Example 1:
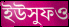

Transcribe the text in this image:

ইউসুফও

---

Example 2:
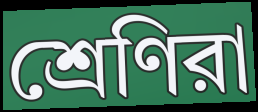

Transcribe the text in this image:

শ্রেণিরা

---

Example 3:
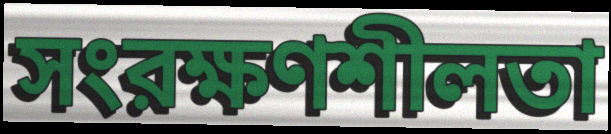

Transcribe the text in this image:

সংরক্ষণশীলতা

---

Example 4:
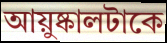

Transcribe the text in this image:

আয়ুষ্কালটাকে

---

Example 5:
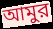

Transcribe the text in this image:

আমুর